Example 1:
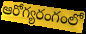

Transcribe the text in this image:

ఆరోగ్యరంగంలో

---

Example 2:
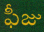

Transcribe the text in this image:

ఫీజు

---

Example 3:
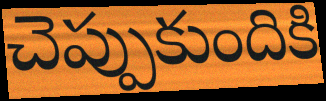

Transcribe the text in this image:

చెప్పుకుందికి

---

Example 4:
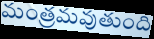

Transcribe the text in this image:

మంత్రమవుతుంది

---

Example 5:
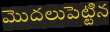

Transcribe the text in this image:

మొదలుపెట్టిన